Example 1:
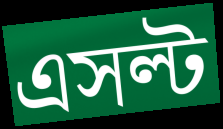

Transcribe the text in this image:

এসল্ট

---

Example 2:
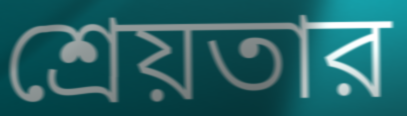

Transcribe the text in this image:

শ্রেয়তার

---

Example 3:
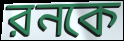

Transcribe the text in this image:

রনকে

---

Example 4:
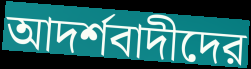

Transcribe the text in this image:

আদর্শবাদীদের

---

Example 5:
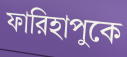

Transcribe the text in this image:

ফারিহাপুকে